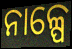
ନାଳ୍ପେ